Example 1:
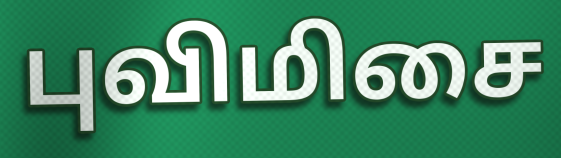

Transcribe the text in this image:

புவிமிசை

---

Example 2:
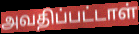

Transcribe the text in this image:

அவதிப்பட்டாள்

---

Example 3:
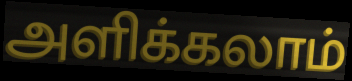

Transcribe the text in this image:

அளிக்கலாம்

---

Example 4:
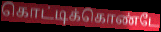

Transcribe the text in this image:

கொட்டிக்கொண்டே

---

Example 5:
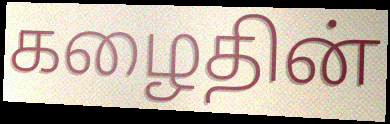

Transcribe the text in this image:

கழைதின்